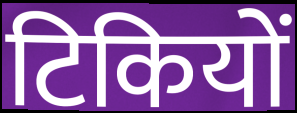
टिकियों